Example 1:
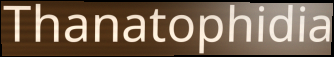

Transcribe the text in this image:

Thanatophidia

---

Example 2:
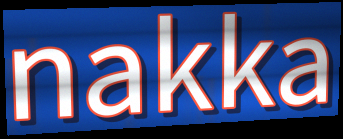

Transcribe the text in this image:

nakka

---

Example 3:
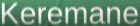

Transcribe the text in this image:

Keremane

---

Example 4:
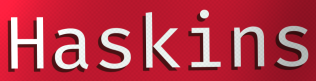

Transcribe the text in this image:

Haskins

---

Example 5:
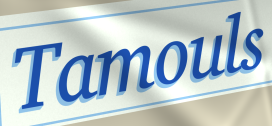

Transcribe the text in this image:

Tamouls